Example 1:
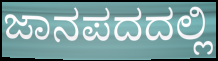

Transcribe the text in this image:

ಜಾನಪದದಲ್ಲಿ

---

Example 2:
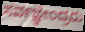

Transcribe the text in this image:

ಸರ್ವಜ್ಞೇಂದ್ರರು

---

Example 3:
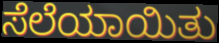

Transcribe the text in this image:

ಸೆಲೆಯಾಯಿತು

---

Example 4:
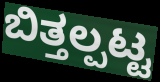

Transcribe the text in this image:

ಬಿತ್ತಲ್ಪಟ್ಟ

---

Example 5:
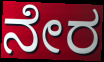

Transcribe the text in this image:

ನೇರ